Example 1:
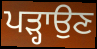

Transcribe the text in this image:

ਪੜ੍ਹਾਉਣ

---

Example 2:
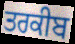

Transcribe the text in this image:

ਤਰਕੀਬ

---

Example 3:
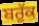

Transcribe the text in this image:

ਬਰੁੱਕ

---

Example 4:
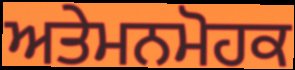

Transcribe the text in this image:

ਅਤੇਮਨਮੋਹਕ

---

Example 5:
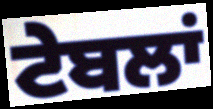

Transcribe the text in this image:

ਟੇਬਲਾਂ